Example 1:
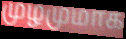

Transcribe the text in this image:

முழமுமாக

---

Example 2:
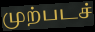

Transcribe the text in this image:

முற்படச்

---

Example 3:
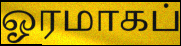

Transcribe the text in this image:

ஓரமாகப்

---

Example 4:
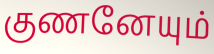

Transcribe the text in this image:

குணனேயும்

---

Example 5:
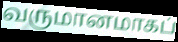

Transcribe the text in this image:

வருமானமாகப்